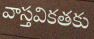
వాస్తవికతకు